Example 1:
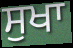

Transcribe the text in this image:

ਸੁਖਾ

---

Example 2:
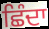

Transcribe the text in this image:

ਛਿੰਦਾ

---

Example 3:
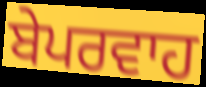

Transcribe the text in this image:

ਬੇਪਰਵਾਹ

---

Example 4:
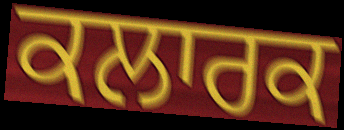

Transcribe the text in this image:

ਕਲਾਰਕ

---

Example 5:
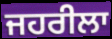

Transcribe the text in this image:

ਜਹਰੀਲਾ